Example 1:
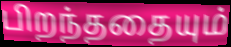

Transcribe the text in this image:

பிறந்ததையும்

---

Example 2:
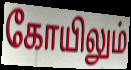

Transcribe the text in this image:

கோயிலும்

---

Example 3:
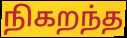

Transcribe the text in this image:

நிகறந்த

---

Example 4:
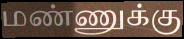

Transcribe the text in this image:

மண்ணுக்கு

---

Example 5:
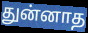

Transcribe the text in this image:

துன்னாத